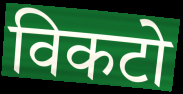
विकटो